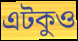
এটকুও